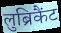
लुब्रिकैंट